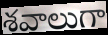
శవాలుగా